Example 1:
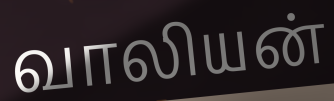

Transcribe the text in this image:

வாலியன்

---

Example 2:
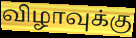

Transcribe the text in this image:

விழாவுக்கு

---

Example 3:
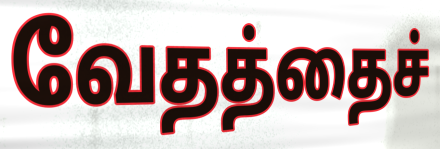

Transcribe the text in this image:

வேதத்தைச்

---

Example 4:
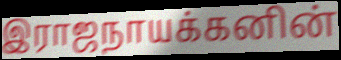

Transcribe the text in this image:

இராஜநாயக்கனின்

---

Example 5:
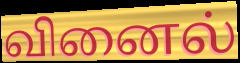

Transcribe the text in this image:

வினைல்